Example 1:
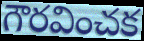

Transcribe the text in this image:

గౌరవించక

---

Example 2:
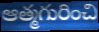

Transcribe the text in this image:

ఆత్మగురించి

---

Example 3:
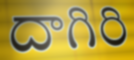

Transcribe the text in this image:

దాగిరి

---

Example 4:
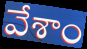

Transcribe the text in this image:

వేశాం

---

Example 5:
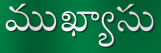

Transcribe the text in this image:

ముఖ్యాసు